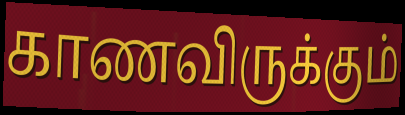
காணவிருக்கும்